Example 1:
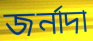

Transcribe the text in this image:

জর্নাদা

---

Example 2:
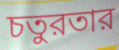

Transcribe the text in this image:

চতুরতার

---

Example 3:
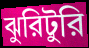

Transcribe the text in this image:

ঝুরিটুরি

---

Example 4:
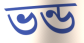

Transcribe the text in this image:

ভন্ড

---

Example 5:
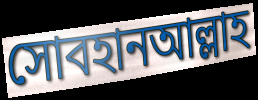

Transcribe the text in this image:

সোবহানআল্লাহ